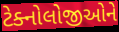
ટેક્નોલોજીઓને